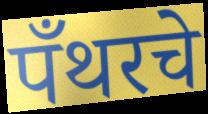
पँथरचे